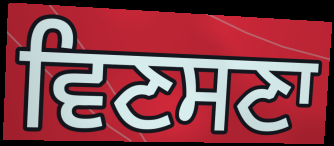
ਵਿਣਸਣਾ